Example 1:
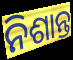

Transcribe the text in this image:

ନିଶାନ୍ତ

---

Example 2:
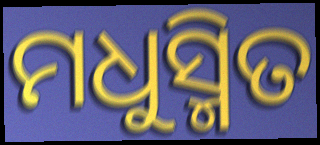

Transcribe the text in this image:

ମଧୁସ୍ମିତ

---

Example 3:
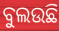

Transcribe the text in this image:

ବୁଲଉଛି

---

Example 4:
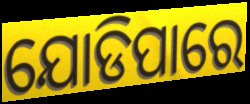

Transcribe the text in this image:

ଯୋଡିପାରେ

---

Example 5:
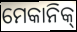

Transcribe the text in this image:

ମେକାନିକ୍